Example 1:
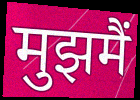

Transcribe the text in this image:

मुझमैं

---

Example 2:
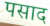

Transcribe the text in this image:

पसाद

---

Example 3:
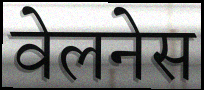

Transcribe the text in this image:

वेलनेस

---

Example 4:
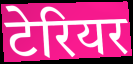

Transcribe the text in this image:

टेरियर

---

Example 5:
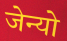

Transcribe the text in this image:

जेन्यो